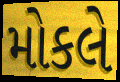
મોકલે